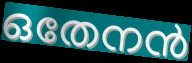
ഒതേനൻ